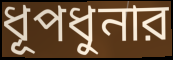
ধূপধুনার